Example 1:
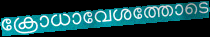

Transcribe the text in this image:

ക്രോധാവേശത്തോടെ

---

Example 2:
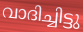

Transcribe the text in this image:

വാദിച്ചിട്ടു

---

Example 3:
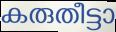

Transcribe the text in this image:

കരുതീട്ടാ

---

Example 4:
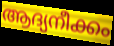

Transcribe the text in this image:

ആദ്യനീക്കം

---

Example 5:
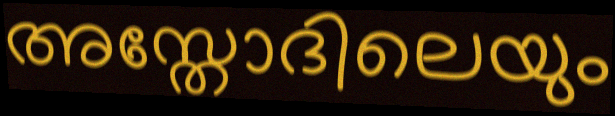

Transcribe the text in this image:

അസ്തോദിലെയും